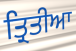
ਤ੍ਰਿਤੀਆ